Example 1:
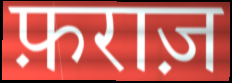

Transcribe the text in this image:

फ़राज़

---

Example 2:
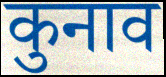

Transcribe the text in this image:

कुनाव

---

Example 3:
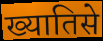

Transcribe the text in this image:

ख्यातिसे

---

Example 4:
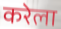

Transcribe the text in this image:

करेला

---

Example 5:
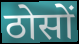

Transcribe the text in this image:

ठोसों